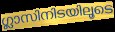
ഗ്ലാസിനിടയിലൂടെ